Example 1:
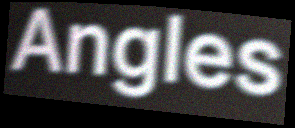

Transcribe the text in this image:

Angles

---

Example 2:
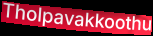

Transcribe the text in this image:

Tholpavakkoothu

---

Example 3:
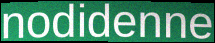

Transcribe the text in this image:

nodidenne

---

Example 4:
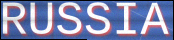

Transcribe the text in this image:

RUSSIA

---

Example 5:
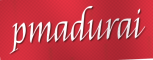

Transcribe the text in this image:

pmadurai